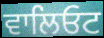
ਵਾਲਿਓਟ